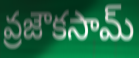
వ్రజౌకసామ్